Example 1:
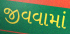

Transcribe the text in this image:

જીવવામાં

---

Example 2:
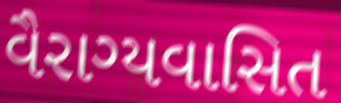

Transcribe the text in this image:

વૈરાગ્યવાસિત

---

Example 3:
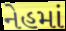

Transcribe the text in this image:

નેહમાં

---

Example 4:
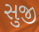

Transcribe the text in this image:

સુજી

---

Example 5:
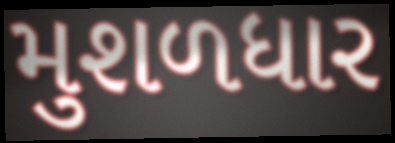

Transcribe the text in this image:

મુશળધાર